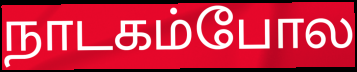
நாடகம்போல